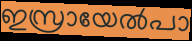
ഇസ്രായേൽപാ